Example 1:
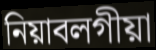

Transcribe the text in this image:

নিয়াবলগীয়া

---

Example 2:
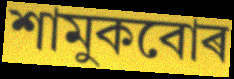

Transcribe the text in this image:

শামুকবোৰ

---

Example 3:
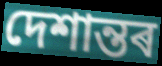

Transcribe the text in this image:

দেশান্তৰ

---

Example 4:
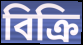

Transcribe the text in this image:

বিক্ৰি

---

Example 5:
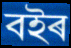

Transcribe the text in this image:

বইৰ